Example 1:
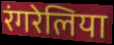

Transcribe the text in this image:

रंगरेलिया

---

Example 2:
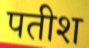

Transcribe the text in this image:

पतीश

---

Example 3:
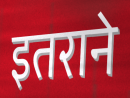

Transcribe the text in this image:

इतराने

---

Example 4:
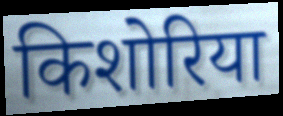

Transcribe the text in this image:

किशोरिया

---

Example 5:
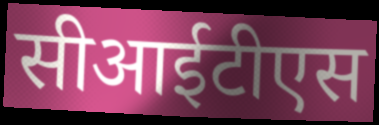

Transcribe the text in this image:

सीआईटीएस